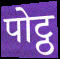
पोट्ठ